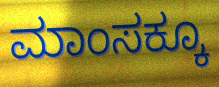
ಮಾಂಸಕ್ಕೂ